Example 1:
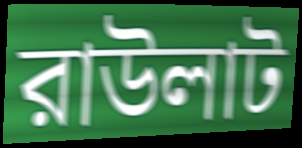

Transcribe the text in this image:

রাউলাট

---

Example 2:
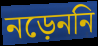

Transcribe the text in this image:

নড়েননি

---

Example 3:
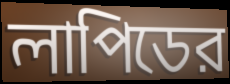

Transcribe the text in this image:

লাপিডের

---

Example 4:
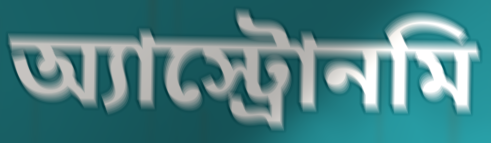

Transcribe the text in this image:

অ্যাস্ট্রোনমি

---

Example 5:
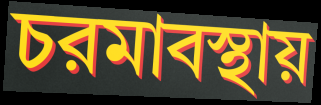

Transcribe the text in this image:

চরমাবস্থায়